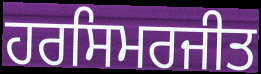
ਹਰਸਿਮਰਜੀਤ